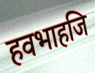
हवभाहजि